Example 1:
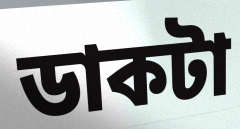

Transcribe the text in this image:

ডাকটা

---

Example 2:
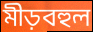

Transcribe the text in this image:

মীড়বহুল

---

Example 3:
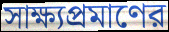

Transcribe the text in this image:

সাক্ষ্যপ্রমাণের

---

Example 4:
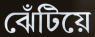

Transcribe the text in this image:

ঝেঁটিয়ে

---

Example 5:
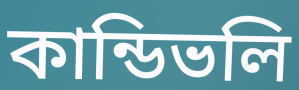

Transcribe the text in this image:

কান্ডিভলি